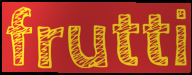
frutti